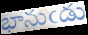
భానుఁడు